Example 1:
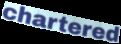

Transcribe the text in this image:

chartered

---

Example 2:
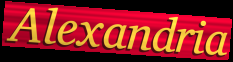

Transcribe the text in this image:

Alexandria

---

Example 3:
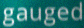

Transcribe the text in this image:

gauged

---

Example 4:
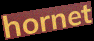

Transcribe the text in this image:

hornet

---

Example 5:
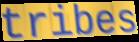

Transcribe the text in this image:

tribes